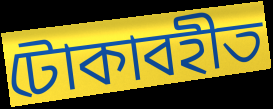
টোকাবহীত